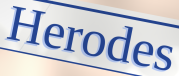
Herodes